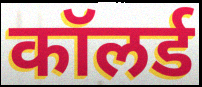
कॉलर्ड